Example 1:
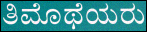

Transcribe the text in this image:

ತಿಮೊಥೆಯರು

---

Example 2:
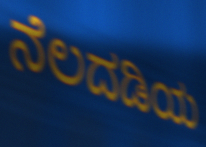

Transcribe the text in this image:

ನೆಲದಡಿಯ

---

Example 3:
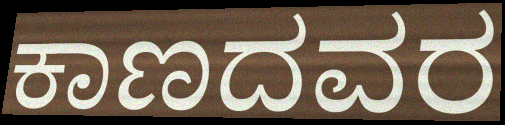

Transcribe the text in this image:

ಕಾಣದವರ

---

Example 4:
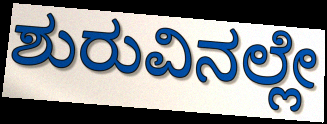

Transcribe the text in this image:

ಶುರುವಿನಲ್ಲೇ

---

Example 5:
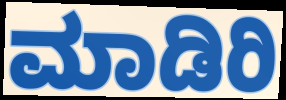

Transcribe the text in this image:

ಮಾಡಿರಿ